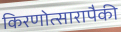
किरणोत्सारापैकी